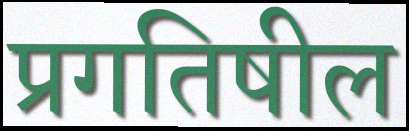
प्रगतिषील